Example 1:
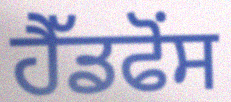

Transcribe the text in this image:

ਹੈੱਡਫੋਂਸ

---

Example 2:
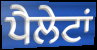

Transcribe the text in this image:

ਪੈਲੇਟਾਂ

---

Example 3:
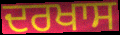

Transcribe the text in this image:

ਦਰਖਾਸ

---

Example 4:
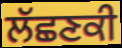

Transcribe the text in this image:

ਲੱਛਣਕੀ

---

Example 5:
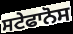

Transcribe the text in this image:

ਸਟੇਫਾਨੋਸ